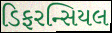
ડિફરન્સિયલ